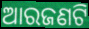
ଆରଜଣଟି